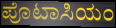
ಪೊಟಾಸಿಯಂ